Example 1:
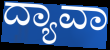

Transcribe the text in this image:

ದ್ಯಾವಾ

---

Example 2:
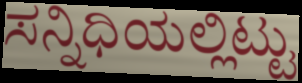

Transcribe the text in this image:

ಸನ್ನಿಧಿಯಲ್ಲಿಟ್ಟು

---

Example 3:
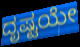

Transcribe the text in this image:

ದೃಷ್ಟಯೇ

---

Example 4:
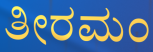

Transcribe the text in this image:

ತೀರಮಂ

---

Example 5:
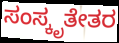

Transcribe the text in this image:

ಸಂಸ್ಕೃತೇತರ